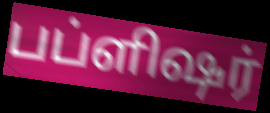
பப்ளிஷர்